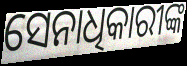
ସେନାଧିକାରୀଙ୍କ